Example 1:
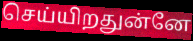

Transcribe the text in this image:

செய்யிறதுன்னே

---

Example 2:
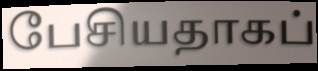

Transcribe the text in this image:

பேசியதாகப்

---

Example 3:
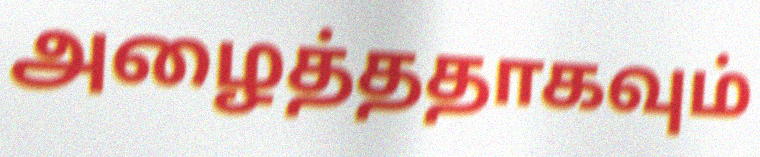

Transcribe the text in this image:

அழைத்ததாகவும்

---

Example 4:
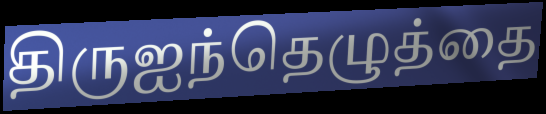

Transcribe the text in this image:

திருஐந்தெழுத்தை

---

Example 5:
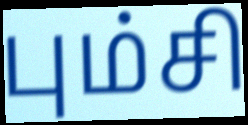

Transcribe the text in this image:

பும்சி